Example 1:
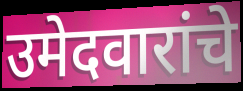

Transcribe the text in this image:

उमेदवारांचे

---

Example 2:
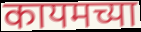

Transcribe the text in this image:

कायमच्या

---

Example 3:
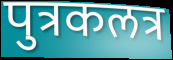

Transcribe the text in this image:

पुत्रकलत्र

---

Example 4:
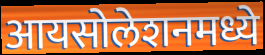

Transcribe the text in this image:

आयसोलेशनमध्ये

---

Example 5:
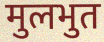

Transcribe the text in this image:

मुलभुत